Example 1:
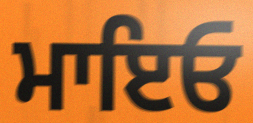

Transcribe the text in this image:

ਮਾਇਓ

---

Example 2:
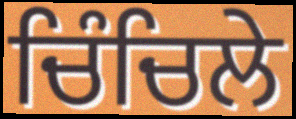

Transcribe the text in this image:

ਚਿੰਚਿਲੇ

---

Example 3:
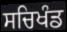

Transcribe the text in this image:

ਸਚਿਖੰਡ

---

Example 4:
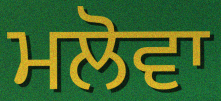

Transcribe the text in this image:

ਮਲੋਵਾ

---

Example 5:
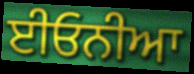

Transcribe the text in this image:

ਈਓਨੀਆ